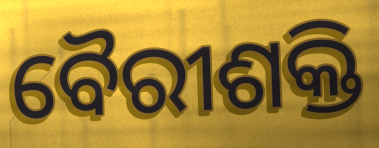
ବୈରୀଶକ୍ତି